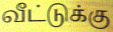
வீட்டுக்கு